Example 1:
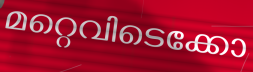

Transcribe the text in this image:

മറ്റെവിടെക്കോ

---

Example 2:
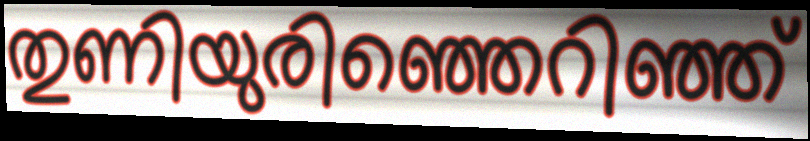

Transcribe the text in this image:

തുണിയുരിഞ്ഞെറിഞ്ഞ്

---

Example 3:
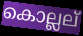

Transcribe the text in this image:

കൊല്ലല്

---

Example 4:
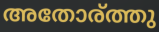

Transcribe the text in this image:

അതോര്ത്തു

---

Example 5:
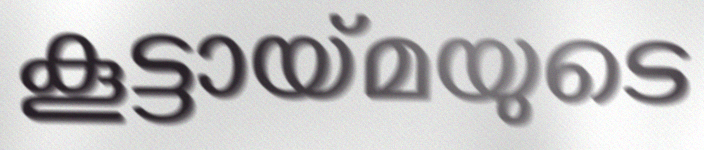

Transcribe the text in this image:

കൂട്ടായ്മയുടെ